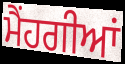
ਮੈਂਹਗੀਆਂ